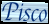
Pisco